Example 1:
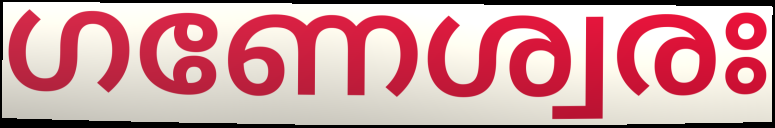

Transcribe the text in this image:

ഗണേശ്വരഃ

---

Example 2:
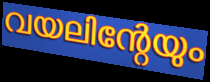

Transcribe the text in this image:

വയലിന്റേയും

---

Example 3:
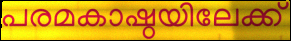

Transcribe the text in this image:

പരമകാഷ്ഠയിലേക്ക്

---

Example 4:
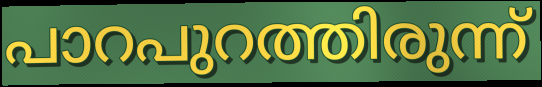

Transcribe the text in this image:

പാറപുറത്തിരുന്ന്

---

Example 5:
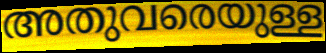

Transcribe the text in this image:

അതുവരെയുള്ള